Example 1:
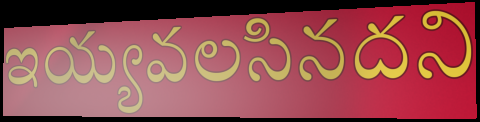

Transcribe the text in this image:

ఇయ్యవలసినదని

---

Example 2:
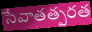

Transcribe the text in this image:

సేవాతత్పరత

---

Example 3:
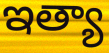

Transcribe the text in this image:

ఇత్యా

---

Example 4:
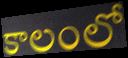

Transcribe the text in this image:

కాలంలో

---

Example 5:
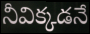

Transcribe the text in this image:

నీవిక్కడనే